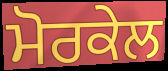
ਮੋਰਕੇਲ